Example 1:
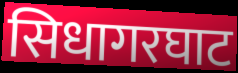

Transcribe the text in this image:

सिधागरघाट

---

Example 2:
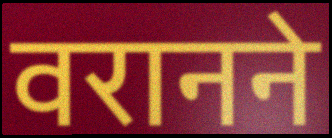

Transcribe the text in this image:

वरानने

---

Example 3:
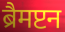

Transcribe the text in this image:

ब्रैमप्टन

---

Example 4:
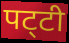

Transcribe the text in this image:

पट्‌टी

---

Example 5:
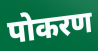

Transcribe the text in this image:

पोकरण